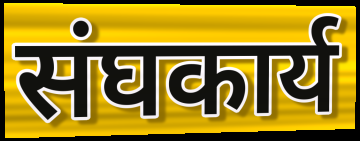
संघकार्य